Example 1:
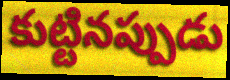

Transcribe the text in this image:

కుట్టినప్పుడు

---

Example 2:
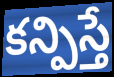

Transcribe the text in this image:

కన్పిస్తే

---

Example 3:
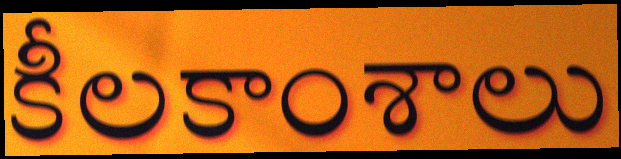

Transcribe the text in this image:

కీలకాంశాలు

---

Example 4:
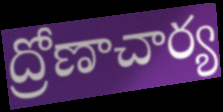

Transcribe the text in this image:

ద్రోణాచార్య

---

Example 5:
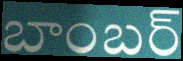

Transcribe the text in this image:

బాంబర్